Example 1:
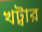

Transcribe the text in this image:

খট্বার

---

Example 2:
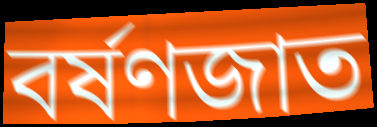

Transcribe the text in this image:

বর্ষণজাত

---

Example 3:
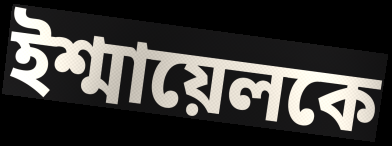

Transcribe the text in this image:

ইশ্মায়েলকে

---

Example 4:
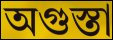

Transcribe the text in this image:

অগুস্তা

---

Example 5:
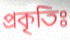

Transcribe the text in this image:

প্রকৃতিঃ